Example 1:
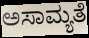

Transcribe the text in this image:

ಅಸಾಮ್ಯತೆ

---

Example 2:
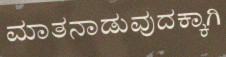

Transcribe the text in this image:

ಮಾತನಾಡುವುದಕ್ಕಾಗಿ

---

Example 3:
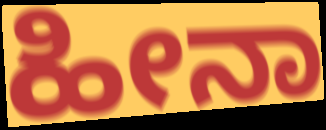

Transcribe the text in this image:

ಹೀನಾ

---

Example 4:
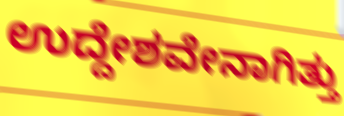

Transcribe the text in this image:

ಉದ್ದೇಶವೇನಾಗಿತ್ತು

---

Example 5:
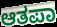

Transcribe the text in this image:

ಆತಪಾ